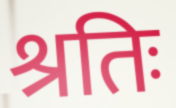
श्रतिः